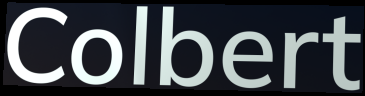
Colbert